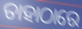
ତାହାଠାରେ